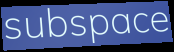
subspace